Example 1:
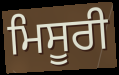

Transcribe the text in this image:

ਮਿਸੂਰੀ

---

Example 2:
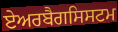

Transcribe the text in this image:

ਏਅਰਬੈਗਸਿਸਟਮ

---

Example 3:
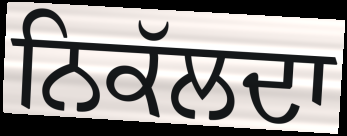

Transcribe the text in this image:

ਨਿਕੱਲਦਾ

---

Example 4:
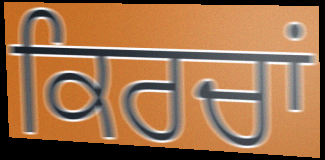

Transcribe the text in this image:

ਕਿਰਚਾਂ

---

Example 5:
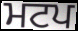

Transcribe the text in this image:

ਮਟਪ